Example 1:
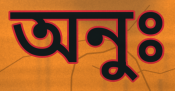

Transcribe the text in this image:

অনুঃ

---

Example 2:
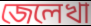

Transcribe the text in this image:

জেলেখা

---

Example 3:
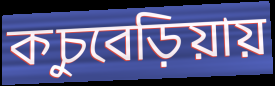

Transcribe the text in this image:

কচুবেড়িয়ায়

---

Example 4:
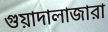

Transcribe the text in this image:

গুয়াদালাজারা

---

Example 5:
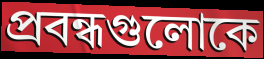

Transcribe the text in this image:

প্রবন্ধগুলোকে